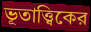
ভূতাত্ত্বিকের